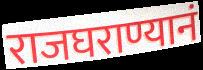
राजघराण्यानं